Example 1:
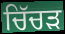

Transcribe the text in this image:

ਚਿੱਚੜ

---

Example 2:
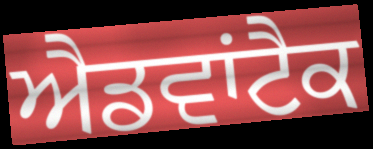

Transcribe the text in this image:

ਐਡਵਾਂਟੈਕ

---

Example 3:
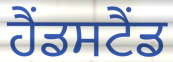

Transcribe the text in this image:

ਹੈਂਡਸਟੈਂਡ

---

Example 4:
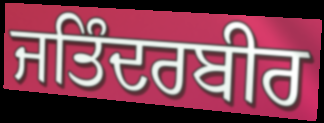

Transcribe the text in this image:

ਜਤਿੰਦਰਬੀਰ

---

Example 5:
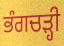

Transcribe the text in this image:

ਭੰਗਚੜ੍ਹੀ